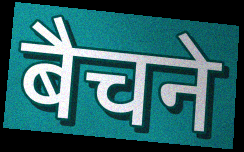
बैचने